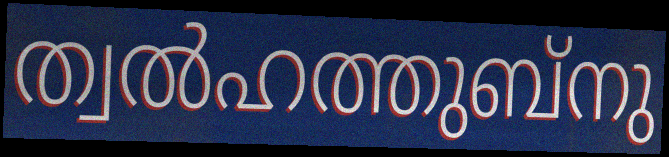
ത്വൽഹത്തുബ്നു